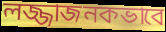
লজ্জাজনকভাবে